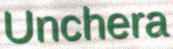
Unchera